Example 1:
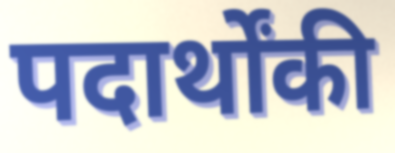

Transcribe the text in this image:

पदार्थोंकी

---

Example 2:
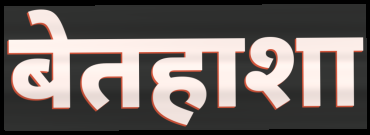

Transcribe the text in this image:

बेतहाशा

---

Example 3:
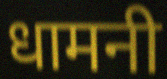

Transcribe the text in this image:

धामनी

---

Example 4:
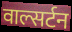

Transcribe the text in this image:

वाल्सर्टन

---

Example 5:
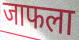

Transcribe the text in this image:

जाफला